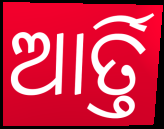
ଆର୍ତ୍ତି